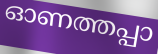
ഓണത്തപ്പാ